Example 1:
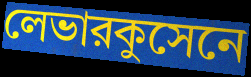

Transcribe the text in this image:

লেভারকুসেনে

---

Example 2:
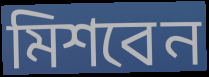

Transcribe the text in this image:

মিশবেন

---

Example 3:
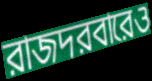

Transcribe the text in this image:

রাজদরবারেও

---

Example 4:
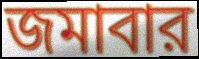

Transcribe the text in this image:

জমাবার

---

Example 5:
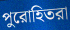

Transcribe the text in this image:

পুরোহিতরা